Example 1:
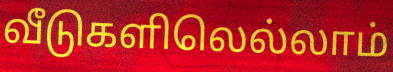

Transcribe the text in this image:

வீடுகளிலெல்லாம்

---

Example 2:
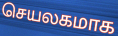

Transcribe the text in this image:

செயலகமாக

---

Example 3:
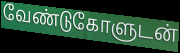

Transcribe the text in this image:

வேண்டுகோளுடன்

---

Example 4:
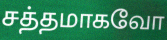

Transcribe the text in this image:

சத்தமாகவோ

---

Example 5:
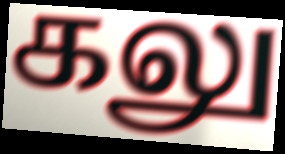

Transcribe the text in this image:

கலு